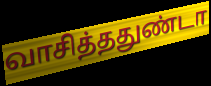
வாசித்ததுண்டா